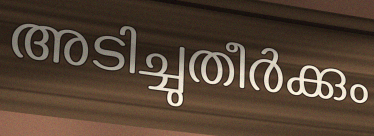
അടിച്ചുതീർക്കും